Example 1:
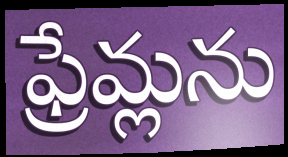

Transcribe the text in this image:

ఫ్రేమ్లను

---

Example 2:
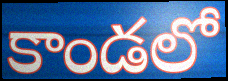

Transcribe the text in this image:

కాండలో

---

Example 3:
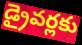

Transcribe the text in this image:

డ్రైవర్లకు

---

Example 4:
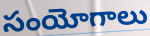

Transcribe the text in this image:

సంయోగాలు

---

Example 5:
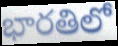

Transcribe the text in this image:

భారతిలో